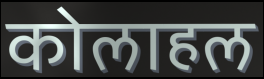
कोलाहल